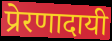
प्रेरणादायी